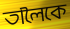
তালৈকে